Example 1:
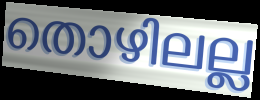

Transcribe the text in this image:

തൊഴിലല്ല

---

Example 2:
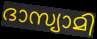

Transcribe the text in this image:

ദാസ്യാമി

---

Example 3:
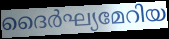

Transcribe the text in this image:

ദൈർഘ്യമേറിയ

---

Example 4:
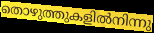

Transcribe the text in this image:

തൊഴുത്തുകളിൽനിന്നു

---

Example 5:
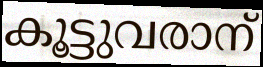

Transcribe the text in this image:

കൂട്ടുവരാന്